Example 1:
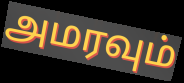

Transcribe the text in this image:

அமரவும்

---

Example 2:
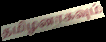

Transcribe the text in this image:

தமிழனாகவும்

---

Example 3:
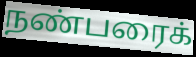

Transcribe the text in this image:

நண்பரைக்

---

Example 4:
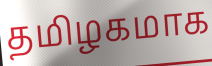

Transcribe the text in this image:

தமிழகமாக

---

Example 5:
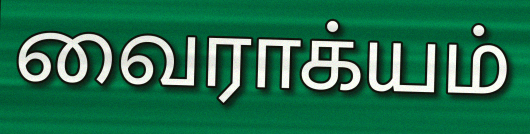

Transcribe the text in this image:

வைராக்யம்